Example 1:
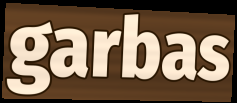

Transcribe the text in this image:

garbas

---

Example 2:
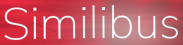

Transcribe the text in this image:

Similibus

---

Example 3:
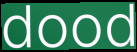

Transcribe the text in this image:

dood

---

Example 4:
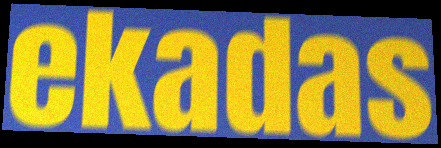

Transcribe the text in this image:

ekadas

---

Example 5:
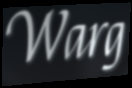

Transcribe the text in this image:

Warg